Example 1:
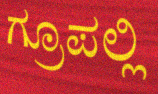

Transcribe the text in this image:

ಗ್ರೂಪಲ್ಲಿ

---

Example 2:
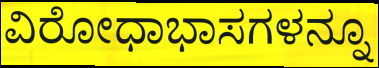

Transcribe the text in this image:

ವಿರೋಧಾಭಾಸಗಳನ್ನೂ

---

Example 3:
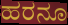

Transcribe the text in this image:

ಹರನೂ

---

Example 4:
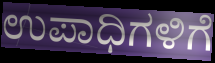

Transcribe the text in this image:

ಉಪಾಧಿಗಳಿಗೆ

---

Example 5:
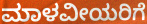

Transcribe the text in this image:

ಮಾಳವೀಯರಿಗೆ